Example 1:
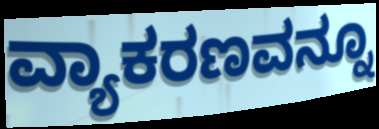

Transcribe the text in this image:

ವ್ಯಾಕರಣವನ್ನೂ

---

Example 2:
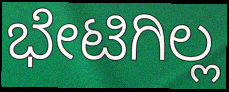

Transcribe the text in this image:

ಭೇಟಿಗಿಲ್ಲ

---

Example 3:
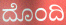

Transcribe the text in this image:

ದೊಂದಿ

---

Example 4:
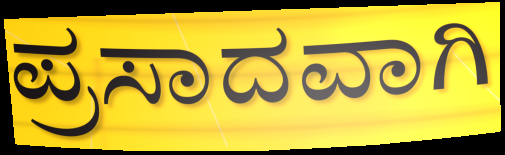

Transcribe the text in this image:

ಪ್ರಸಾದವಾಗಿ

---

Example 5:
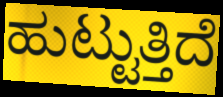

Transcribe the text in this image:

ಹುಟ್ಟುತ್ತಿದೆ